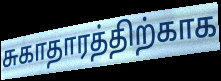
சுகாதாரத்திற்காக